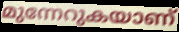
മുന്നേറുകയാണ്